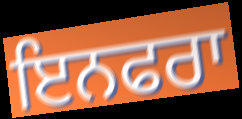
ਇਨਫਰਾ